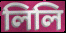
লিলি